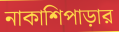
নাকাশিপাড়ার